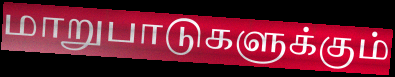
மாறுபாடுகளுக்கும்